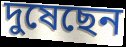
দুষেছেন